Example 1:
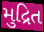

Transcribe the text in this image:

મુદ્રિત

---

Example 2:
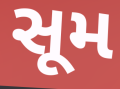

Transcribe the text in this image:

સૂમ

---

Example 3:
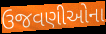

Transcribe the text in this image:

ઉજવણીઓના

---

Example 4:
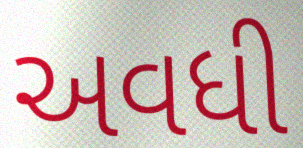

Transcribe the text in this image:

અવધી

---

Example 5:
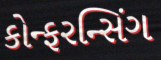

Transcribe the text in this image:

કોન્ફરન્સિંગ